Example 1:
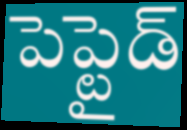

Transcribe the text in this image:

పెప్టైడ్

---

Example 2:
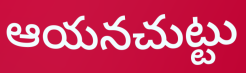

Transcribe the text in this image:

ఆయనచుట్టు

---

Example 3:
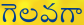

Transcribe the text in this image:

గెలవగా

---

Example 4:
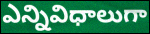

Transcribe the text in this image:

ఎన్నివిధాలుగా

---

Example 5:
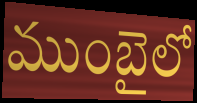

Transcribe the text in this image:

ముంబైలో